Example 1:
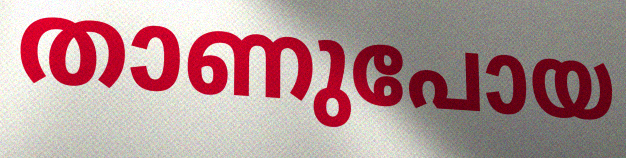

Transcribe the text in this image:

താണുപോയ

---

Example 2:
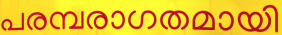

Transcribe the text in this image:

പരമ്പരാഗതമായി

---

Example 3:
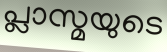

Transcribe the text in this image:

പ്ലാസ്മയുടെ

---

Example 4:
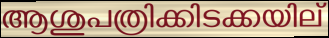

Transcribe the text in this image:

ആശുപത്രിക്കിടക്കയില്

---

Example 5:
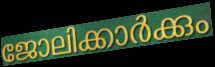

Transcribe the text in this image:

ജോലിക്കാർക്കും